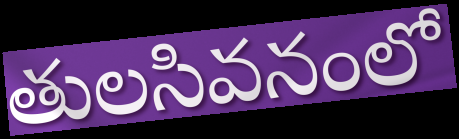
తులసివనంలో